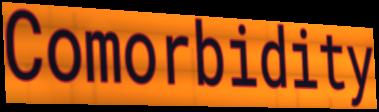
Comorbidity